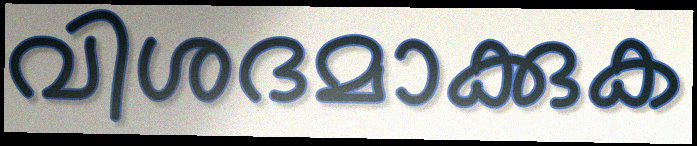
വിശദമാക്കുക